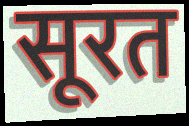
सूरत